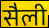
सैली